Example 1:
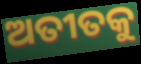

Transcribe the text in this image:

ଅତୀତକୁ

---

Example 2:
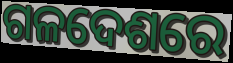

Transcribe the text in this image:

ଗଳଦେଶରେ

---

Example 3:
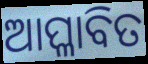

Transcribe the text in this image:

ଆପ୍ଳାବିତ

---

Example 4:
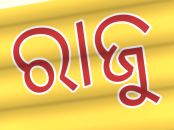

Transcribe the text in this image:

ରାଜୁ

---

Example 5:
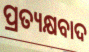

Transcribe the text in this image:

ପ୍ରତ୍ୟକ୍ଷବାଦ